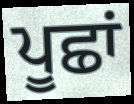
ਪੂਛਾਂ